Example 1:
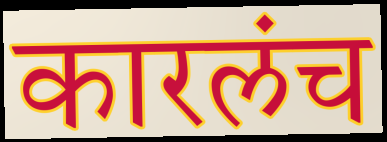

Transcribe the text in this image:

कारलंच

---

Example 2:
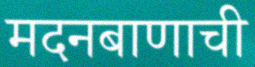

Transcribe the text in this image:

मदनबाणाची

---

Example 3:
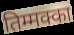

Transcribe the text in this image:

तिम्मक्का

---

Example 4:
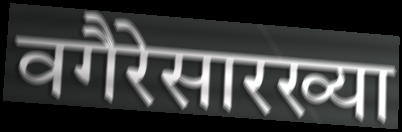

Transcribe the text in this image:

वगैरेसारख्या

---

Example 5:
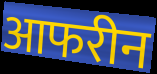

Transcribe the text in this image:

आफरीन